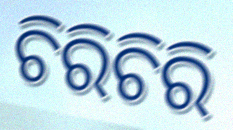
ଚିରିଚିରି